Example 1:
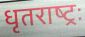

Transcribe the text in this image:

धृतराष्ट्रः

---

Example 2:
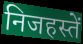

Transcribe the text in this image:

निजहस्तें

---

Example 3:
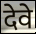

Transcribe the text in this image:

देवे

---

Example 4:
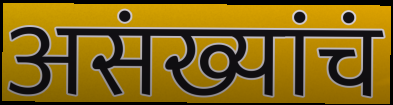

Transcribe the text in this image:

असंख्यांचं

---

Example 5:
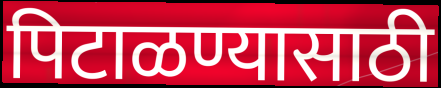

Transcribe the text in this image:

पिटाळण्यासाठी